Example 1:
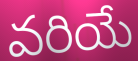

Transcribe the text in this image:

వరియే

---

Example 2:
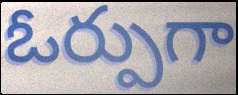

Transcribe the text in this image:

ఓర్పుగా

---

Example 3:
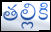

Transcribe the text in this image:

తల్లికి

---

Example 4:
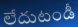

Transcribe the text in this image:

లేదుటండీ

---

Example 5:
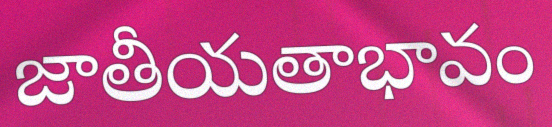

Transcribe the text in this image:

జాతీయతాభావం